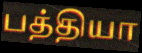
பத்தியா